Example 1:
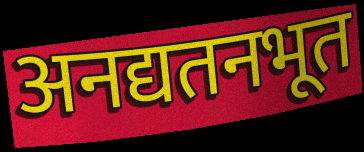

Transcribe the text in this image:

अनद्यतनभूत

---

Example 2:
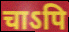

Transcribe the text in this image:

चाऽपि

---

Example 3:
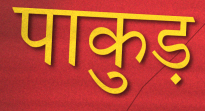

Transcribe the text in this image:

पाकुड़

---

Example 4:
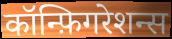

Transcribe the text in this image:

कॉन्फ़िगरेशन्स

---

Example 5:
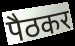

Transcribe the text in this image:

पैठकर